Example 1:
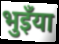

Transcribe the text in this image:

भुइँया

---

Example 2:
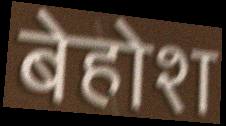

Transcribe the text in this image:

बेहोश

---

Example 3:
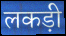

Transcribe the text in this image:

लकड़ी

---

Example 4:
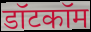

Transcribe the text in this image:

डॉटकॉम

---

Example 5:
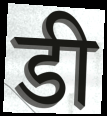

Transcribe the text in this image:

डी